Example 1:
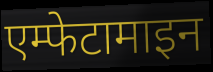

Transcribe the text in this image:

एम्फेटामाइन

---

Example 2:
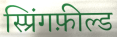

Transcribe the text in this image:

स्प्रिंगफ़ील्ड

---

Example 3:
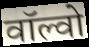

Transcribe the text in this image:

वॉल्वो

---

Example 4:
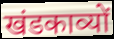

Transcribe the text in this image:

खंडकाव्यों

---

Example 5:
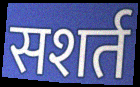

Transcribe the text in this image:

सशर्त